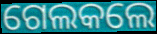
ଗେଲକଲେ